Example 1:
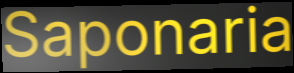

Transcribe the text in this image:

Saponaria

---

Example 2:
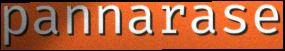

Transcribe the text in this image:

pannarase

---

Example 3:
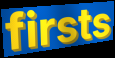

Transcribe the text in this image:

firsts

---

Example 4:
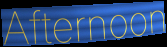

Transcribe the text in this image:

Afternoon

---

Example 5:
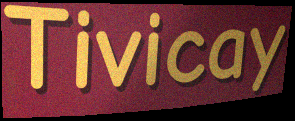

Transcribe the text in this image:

Tivicay